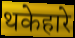
थकेहारे